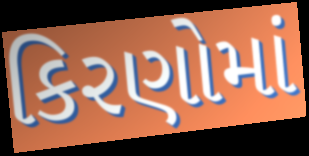
કિરણોમાં